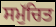
ਸਮੁੱਚਿਤ